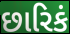
છારિકં